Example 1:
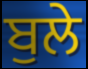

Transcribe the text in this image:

ਬੁਲੇ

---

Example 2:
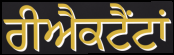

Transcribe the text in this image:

ਰੀਐਕਟੈਂਟਾਂ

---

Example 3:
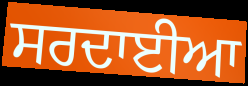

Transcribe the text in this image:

ਸਰਦਾਈਆ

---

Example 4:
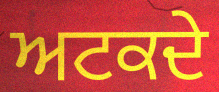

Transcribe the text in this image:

ਅਟਕਦੇ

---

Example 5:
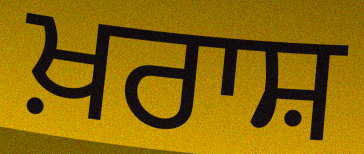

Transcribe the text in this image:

ਖ਼ਰਾਸ਼